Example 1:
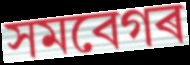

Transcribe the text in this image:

সমবেগৰ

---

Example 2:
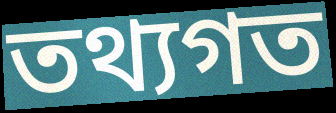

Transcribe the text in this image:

তথ্যগত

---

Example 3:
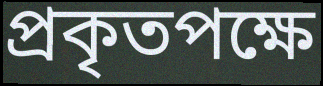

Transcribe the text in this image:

প্ৰকৃতপক্ষে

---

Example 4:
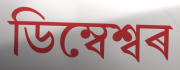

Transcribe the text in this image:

ডিম্বেশ্বৰ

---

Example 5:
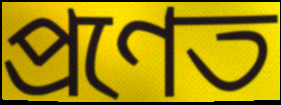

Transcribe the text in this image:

প্ৰণেত